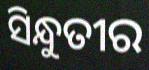
ସିନ୍ଧୁତୀର